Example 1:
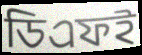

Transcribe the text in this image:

ডিএফই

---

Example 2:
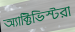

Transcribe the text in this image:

অ্যাক্টিভিস্টরা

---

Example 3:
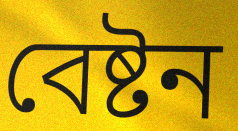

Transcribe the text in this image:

বেষ্টন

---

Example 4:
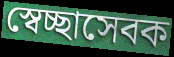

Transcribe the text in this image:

স্বেচ্ছাসেবক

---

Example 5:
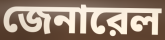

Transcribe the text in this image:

জেনারেল